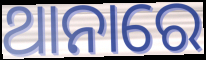
ଥାନାରେ